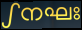
ഽനഘഃ